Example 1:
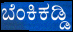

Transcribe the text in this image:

ಬೆಂಕಿಕಡ್ಡಿ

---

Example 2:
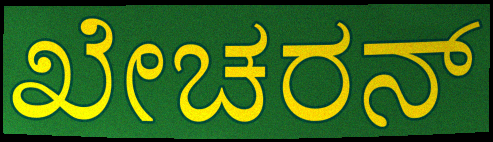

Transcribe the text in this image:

ಖೇಚರನ್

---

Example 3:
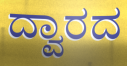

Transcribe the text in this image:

ದ್ವಾರದ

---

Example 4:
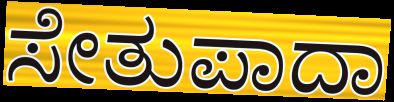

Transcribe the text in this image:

ಸೇತುಪಾದಾ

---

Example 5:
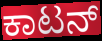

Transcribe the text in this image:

ಕಾಟನ್